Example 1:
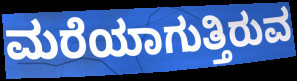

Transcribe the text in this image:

ಮರೆಯಾಗುತ್ತಿರುವ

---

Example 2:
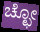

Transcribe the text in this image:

ಚ್ಛೋ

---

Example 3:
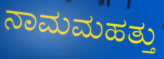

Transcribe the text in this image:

ನಾಮಮಹತ್ತು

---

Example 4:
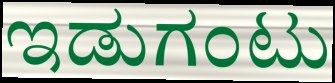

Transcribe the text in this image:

ಇಡುಗಂಟು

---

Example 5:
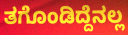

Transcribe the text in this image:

ತಗೊಂಡಿದ್ದೆನಲ್ಲ